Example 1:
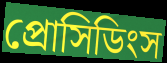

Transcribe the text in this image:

প্রোসিডিংস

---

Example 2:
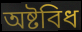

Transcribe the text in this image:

অষ্টবিধ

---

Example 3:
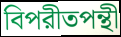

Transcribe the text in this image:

বিপরীতপন্থী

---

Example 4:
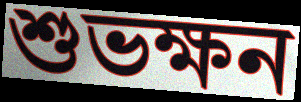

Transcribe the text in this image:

শুভক্ষন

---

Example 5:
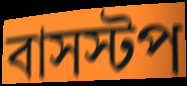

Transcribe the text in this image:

বাসস্টপ